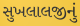
સુખલાલજીનું